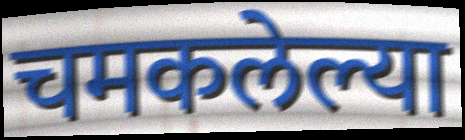
चमकलेल्या